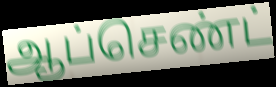
ஆப்செண்ட்